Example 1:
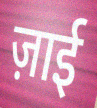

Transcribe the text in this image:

ज़ाई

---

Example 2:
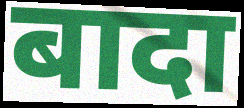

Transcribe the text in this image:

बादा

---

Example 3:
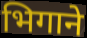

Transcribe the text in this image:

भिगाने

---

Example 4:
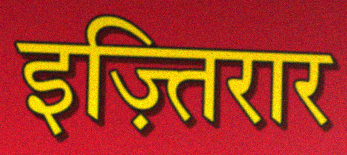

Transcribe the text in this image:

इज़्तिरार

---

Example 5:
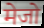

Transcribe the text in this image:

मेजो